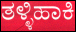
ತಳ್ಳಿಹಾಕಿ